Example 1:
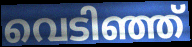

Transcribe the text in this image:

വെടിഞ്ഞ്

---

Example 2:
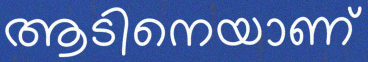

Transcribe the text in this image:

ആടിനെയാണ്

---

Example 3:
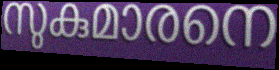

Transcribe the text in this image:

സുകുമാരനെ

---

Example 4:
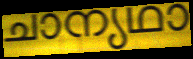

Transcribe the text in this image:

ചാന്യഥാ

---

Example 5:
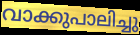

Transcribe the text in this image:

വാക്കുപാലിച്ചു